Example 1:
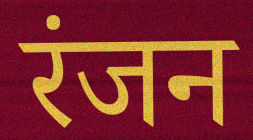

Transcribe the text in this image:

रंजन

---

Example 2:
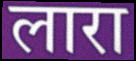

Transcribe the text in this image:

लारा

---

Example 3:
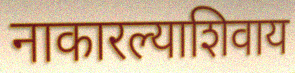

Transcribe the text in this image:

नाकारल्याशिवाय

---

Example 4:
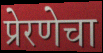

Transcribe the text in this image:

प्रेरणेचा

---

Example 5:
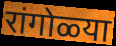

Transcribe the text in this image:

रांगोळ्या